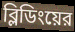
ব্লিডিংয়ের